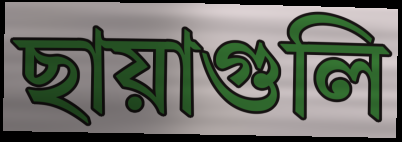
ছায়াগুলি